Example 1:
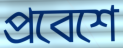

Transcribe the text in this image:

প্রবেশে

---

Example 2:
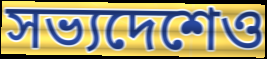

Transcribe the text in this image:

সভ্যদেশেও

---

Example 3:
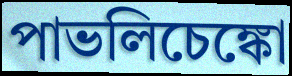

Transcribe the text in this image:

পাভলিচেঙ্কো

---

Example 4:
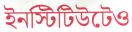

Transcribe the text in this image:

ইনস্টিটিউটেও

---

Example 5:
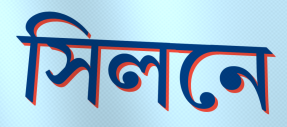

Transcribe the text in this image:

সিলনে